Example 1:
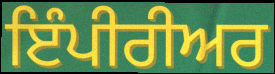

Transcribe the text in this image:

ਇੰਪੀਰੀਅਰ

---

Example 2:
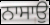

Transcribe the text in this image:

ਨਾਸਾਉ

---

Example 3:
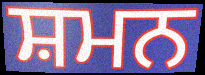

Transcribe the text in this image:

ਸ਼ਮਨ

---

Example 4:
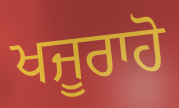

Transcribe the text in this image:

ਖਜੂਰਾਹੋ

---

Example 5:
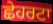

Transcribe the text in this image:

ਛੇਹਰਟਾ